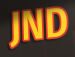
JND